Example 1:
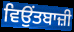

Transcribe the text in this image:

ਵਿਉਂਤਬਾਜ਼ੀ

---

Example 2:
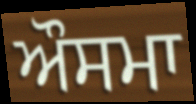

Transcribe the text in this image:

ਔਸਮਾ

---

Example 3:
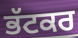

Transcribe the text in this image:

ਭੱਟਕਰ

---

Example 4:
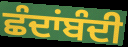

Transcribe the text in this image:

ਛੰਦਾਂਬੰਦੀ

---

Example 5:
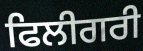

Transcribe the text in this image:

ਫਿਲੀਗਰੀ